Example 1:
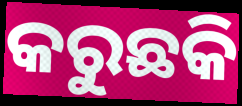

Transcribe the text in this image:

କରୁଛକି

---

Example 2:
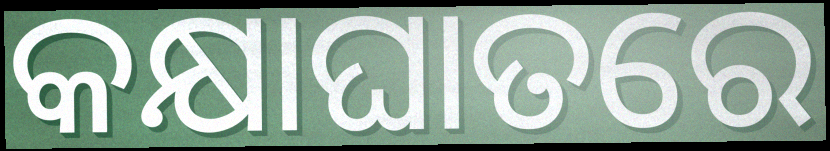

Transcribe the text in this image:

କକ୍ଷାଘାତରେ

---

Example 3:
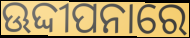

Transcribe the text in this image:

ଊଦ୍ଦୀପନାରେ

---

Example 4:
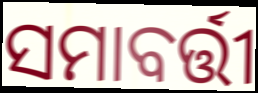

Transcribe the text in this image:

ସମାବର୍ତ୍ତୀ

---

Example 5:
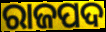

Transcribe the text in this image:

ରାଜପଦ